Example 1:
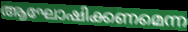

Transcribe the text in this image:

ആഘോഷിക്കണമെന്ന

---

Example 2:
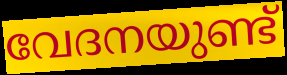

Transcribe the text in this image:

വേദനയുണ്ട്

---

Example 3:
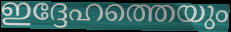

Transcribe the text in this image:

ഇദ്ദേഹത്തെയും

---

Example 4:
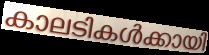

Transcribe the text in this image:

കാലടികൾക്കായി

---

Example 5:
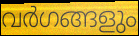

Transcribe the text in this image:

വർഗങ്ങളും